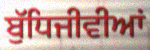
ਬੁੱਧਿਜੀਵੀਆਂ